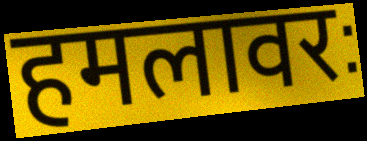
हमलावरः